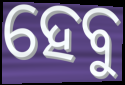
ହେବୁ